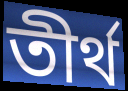
তীৰ্থ